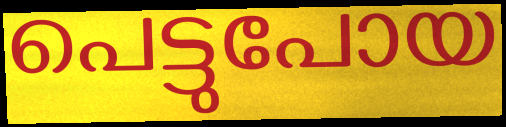
പെട്ടുപോയ